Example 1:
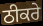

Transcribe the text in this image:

ਠੀਕਰੇ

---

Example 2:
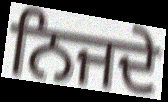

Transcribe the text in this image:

ਨਿਜਦੇ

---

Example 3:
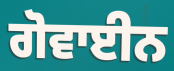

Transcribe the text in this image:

ਗੋਵਾਈਨ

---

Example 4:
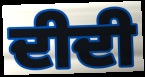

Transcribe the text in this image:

ਦੀਦੀ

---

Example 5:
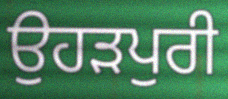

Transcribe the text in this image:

ਉਹੜਪੁਰੀ